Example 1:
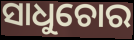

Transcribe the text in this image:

ସାଧୁଚୋର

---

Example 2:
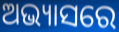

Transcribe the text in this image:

ଅଭ୍ୟାସରେ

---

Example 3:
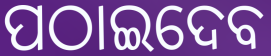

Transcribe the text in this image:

ପଠାଇଦେବ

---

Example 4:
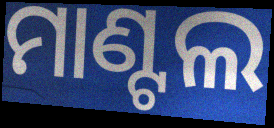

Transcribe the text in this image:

ମାଣ୍ଟଲ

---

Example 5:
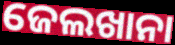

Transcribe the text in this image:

ଜେଲଖାନା